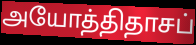
அயோத்திதாசப்